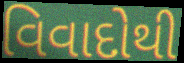
વિવાદોથી